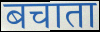
बचाता